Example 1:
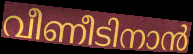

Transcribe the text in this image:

വീണീടിനാൻ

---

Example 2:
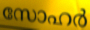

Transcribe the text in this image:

സോഹർ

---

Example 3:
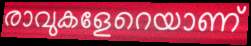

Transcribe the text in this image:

രാവുകളേറെയാണ്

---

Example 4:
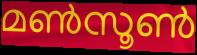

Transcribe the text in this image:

മൺസൂൺ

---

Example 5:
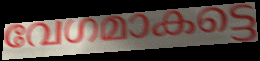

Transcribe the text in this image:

വേഗമാകട്ടെ